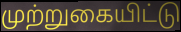
முற்றுகையிட்டு